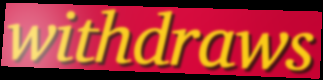
withdraws